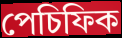
পেচিফিক